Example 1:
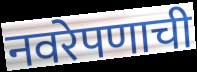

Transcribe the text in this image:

नवरेपणाची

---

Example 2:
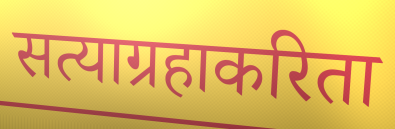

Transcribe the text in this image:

सत्याग्रहाकरिता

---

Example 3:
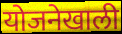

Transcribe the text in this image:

योजनेखाली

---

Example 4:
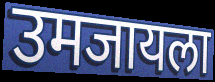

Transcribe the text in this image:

उमजायला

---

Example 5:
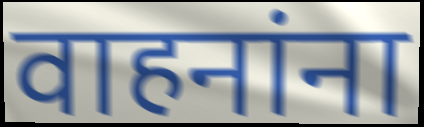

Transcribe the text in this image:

वाहनांना